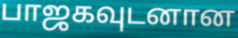
பாஜகவுடனான